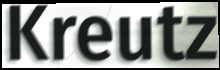
Kreutz